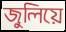
জুলিয়ে